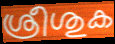
ശ്രീശുക